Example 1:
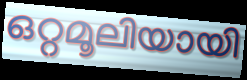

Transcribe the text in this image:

ഒറ്റമൂലിയായി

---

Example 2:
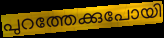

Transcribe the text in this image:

പുറത്തേക്കുപോയി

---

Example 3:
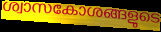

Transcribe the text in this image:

ശ്വാസകോശങ്ങളുടെ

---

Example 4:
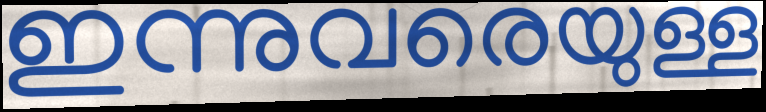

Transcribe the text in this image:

ഇന്നുവരെയുള്ള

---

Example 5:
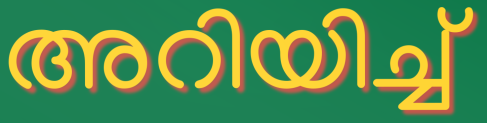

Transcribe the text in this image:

അറിയിച്ച്